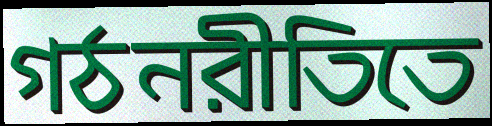
গঠনরীতিতে